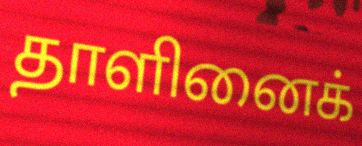
தாளினைக்